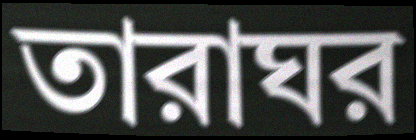
তারাঘর